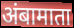
अंबामाता